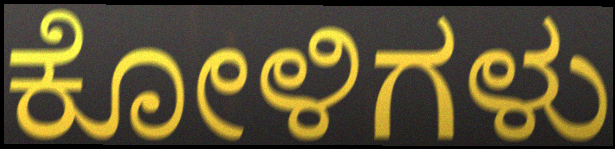
ಕೋಳಿಗಳು